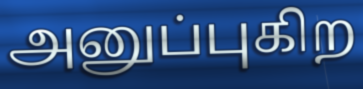
அனுப்புகிற